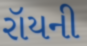
રૉયની